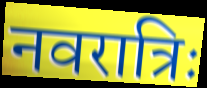
नवरात्रिः